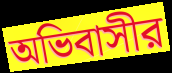
অভিবাসীর